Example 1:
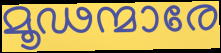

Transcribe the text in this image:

മൂഢന്മാരേ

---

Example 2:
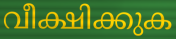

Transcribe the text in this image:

വീക്ഷിക്കുക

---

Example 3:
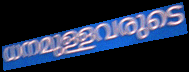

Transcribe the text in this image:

ധനമുള്ളവരുടെ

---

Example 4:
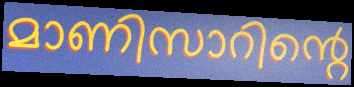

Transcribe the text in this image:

മാണിസാറിന്റെ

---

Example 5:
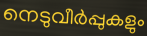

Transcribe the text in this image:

നെടുവീർപ്പുകളും